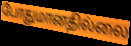
போதுமானதில்லை